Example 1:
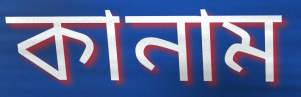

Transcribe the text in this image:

কানাম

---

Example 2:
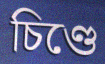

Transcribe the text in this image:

চিণ্ডে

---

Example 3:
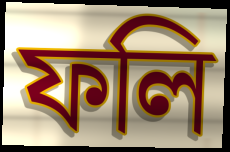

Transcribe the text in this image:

ফলি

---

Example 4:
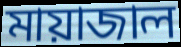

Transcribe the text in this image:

মায়াজাল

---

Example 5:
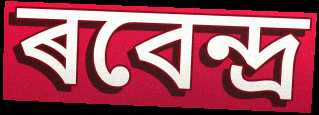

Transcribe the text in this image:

ৰবেন্দ্ৰ